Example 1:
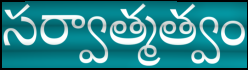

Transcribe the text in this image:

సర్వాత్మత్వం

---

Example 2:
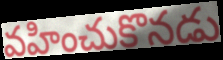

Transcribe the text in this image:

వహించుకొనడు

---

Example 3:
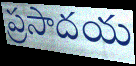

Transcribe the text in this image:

ప్రసాదయ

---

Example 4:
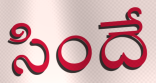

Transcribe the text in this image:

సిందే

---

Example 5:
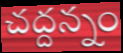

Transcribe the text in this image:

చద్దన్నం